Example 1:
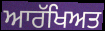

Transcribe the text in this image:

ਆਰੱਖਿਅਤ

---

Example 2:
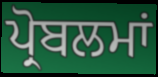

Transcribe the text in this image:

ਪ੍ਰੋਬਲਮਾਂ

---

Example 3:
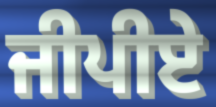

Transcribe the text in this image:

ਜੀਪੀਏ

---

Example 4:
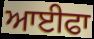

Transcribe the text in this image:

ਆਈਫਾ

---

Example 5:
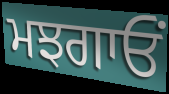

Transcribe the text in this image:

ਮਝਗਾਓਂ